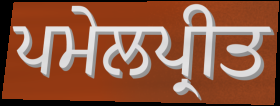
ਪਮੇਲਪ੍ਰੀਤ